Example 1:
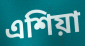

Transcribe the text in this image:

এশিয়া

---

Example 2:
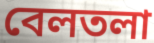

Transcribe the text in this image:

বেলতলা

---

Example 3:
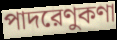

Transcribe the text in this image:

পাদরেণুকণা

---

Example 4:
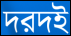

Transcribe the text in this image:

দরদই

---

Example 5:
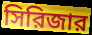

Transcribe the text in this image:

সিরিজার